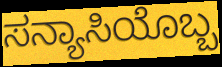
ಸನ್ಯಾಸಿಯೊಬ್ಬ